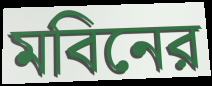
মবিনের